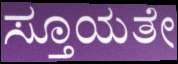
ಸ್ತೂಯತೇ